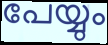
പേയ്യും